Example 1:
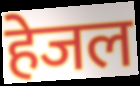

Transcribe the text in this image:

हेजल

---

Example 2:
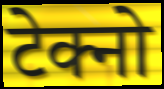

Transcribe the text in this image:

टेक्नो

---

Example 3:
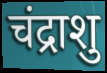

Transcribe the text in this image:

चंद्राशु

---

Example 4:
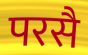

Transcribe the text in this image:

परसै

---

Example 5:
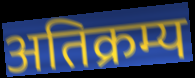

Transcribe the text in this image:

अतिक्रम्य